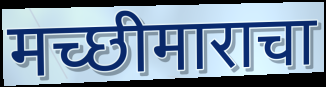
मच्छीमाराचा